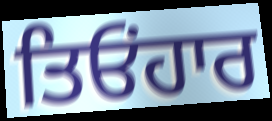
ਤਿਓਂਹਾਰ